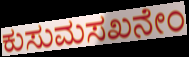
ಕುಸುಮಸಖನೇಂ